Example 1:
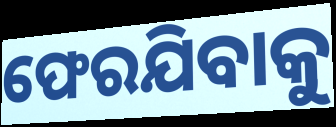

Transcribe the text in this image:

ଫେରଯିବାକୁ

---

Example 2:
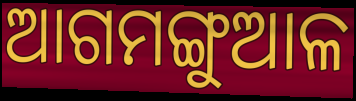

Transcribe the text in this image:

ଆଗମଙ୍ଗୁଆଳ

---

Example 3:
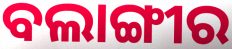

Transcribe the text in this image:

ବଲାଙ୍ଗୀର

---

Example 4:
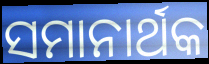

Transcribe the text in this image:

ସମାନାର୍ଥକ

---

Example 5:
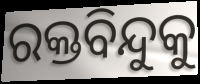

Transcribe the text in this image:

ରକ୍ତବିନ୍ଦୁକୁ